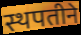
स्थपतीने